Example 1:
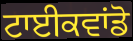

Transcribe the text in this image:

ਟਾਈਕਵਾਂਡੋ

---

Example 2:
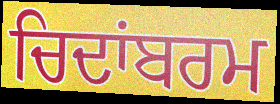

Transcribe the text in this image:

ਚਿਦਾਂਬਰਮ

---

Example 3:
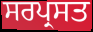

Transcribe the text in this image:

ਸਰਪ੍ਰਸਤ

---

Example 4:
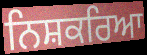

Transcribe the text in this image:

ਨਿਸ਼ਕਰਿਆ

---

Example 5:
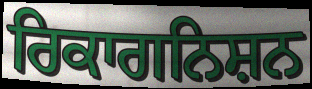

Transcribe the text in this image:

ਰਿਕਾਗਨਿਸ਼ਨ